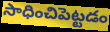
సాధించిపెట్టడం